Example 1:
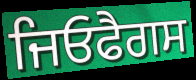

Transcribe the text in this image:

ਜਿਓਫੈਗਸ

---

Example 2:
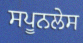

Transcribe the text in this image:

ਸਪੂਨਲੇਸ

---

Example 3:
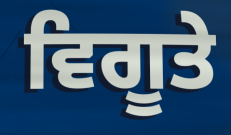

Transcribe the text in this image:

ਵਿਗੂਤੇ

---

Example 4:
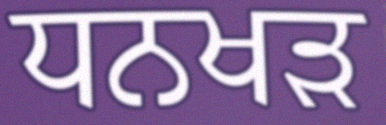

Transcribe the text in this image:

ਧਨਖੜ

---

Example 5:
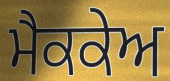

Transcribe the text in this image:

ਮੈਕਕੇਅ